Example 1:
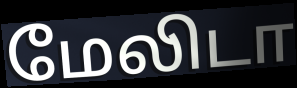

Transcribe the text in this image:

மேலிடா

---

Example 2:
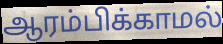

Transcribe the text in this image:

ஆரம்பிக்காமல்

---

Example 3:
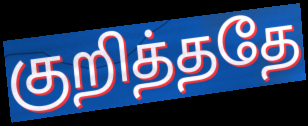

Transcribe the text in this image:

குறித்ததே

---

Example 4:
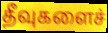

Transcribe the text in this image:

தீவுகளைச்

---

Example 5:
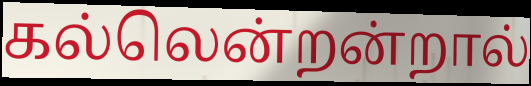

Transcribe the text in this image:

கல்லென்றன்றால்